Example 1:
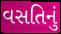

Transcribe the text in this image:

વસતિનું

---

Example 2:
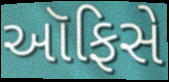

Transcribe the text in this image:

ઑફિસે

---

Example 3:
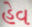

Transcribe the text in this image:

હેવ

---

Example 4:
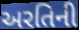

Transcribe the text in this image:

અરતિની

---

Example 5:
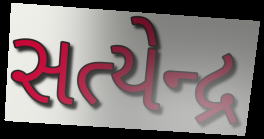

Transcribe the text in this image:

સત્યેન્દ્ર